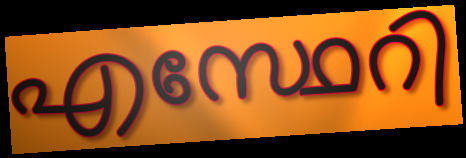
എസ്ഥേറി